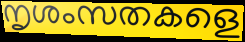
നൃശംസതകളെ